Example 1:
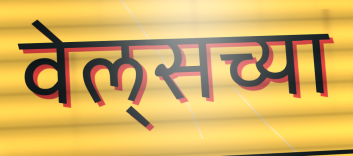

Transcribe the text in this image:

वेल्सच्या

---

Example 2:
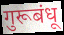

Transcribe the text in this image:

गुरूबंधू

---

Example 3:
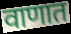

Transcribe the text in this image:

वाणात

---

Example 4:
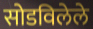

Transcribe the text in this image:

सोडविलेले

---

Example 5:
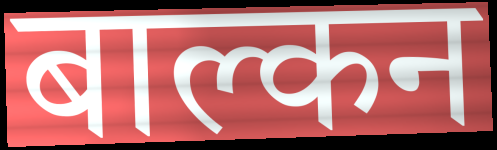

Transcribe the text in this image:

बाल्कन